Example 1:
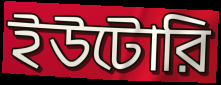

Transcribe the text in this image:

ইউটোরি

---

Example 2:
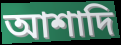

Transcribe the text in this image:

আশাদি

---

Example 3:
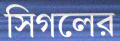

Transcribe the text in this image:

সিগলের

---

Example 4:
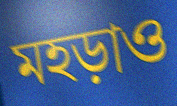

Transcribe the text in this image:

মহড়াও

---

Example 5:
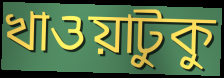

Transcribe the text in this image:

খাওয়াটুকু